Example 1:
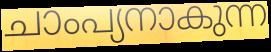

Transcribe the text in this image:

ചാംപ്യനാകുന്ന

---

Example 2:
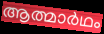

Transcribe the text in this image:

ആത്മാർഥം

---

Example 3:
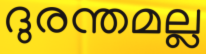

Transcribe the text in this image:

ദുരന്തമല്ല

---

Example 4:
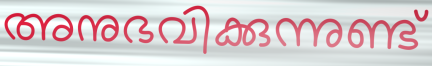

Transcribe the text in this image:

അനുഭവിക്കുന്നുണ്ട്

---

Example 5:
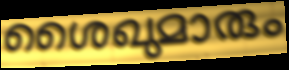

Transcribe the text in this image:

ശൈഖുമാരും